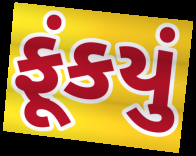
ફૂંકયું